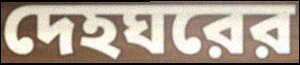
দেহঘরের